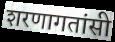
शरणागतांसी